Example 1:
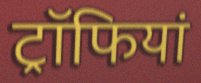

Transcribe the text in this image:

ट्रॉफियां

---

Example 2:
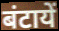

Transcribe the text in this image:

बंटायें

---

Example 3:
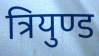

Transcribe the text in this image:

त्रियुण्ड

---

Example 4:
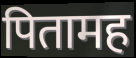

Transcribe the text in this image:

पितामह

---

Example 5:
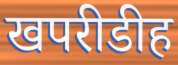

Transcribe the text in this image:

खपरीडीह